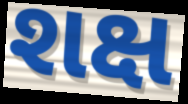
શક્ષ